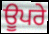
ਊਪਰੇ